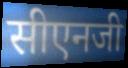
सीएनजी